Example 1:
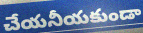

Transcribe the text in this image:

చేయనీయకుండా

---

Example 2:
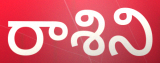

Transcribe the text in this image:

రాశిని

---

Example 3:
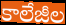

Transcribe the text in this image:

కాలేజీల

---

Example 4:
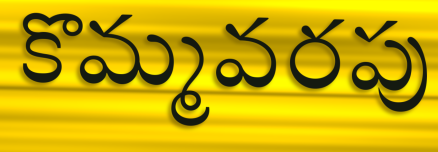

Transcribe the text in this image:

కొమ్మవరపు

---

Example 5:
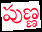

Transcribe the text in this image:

పుణ్ణ